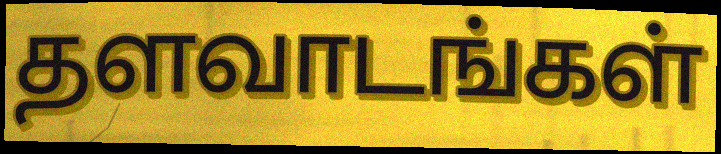
தளவாடங்கள்